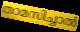
താമസിച്ചാൽ